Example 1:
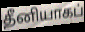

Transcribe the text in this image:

தீனியாகப்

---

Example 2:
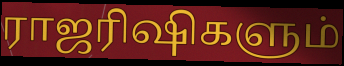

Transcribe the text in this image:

ராஜரிஷிகளும்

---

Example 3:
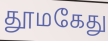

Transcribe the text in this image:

தூமகேது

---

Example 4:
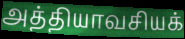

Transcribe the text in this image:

அத்தியாவசியக்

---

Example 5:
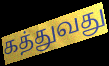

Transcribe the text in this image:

கத்துவது